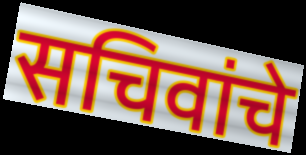
सचिवांचे